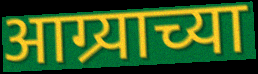
आग्र्याच्या